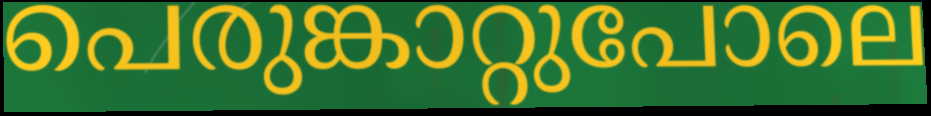
പെരുങ്കാറ്റുപോലെ